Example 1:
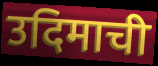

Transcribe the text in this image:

उदिमाची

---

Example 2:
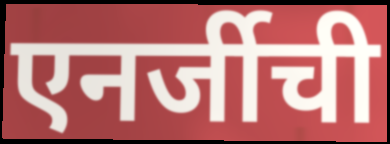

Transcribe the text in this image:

एनर्जीची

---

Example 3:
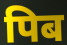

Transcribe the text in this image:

पिब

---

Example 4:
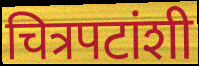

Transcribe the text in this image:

चित्रपटांशी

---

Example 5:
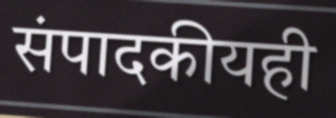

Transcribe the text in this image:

संपादकीयही